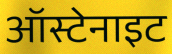
ऑस्टेनाइट